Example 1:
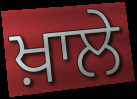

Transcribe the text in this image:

ਖ਼ਾਲੇ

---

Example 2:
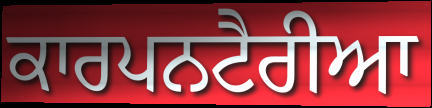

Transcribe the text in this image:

ਕਾਰਪਨਟੈਰੀਆ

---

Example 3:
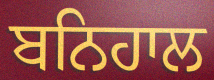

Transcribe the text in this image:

ਬਨਿਹਾਲ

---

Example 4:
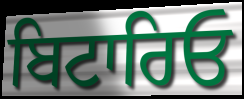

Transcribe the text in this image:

ਬਿਟਾਰਿਓ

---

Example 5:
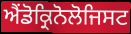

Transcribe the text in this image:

ਐਂਡੋਕ੍ਰਿਨੋਲੋਜਿਸਟ